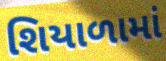
શિયાળામાં